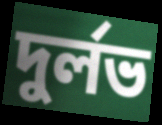
দুর্লভ